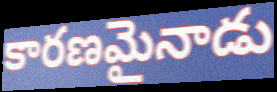
కారణమైనాడు